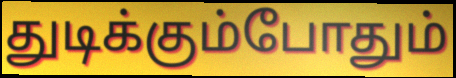
துடிக்கும்போதும்